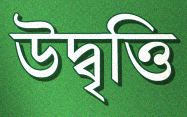
উদ্বৃত্তি